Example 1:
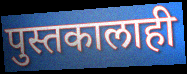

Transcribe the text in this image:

पुस्तकालाही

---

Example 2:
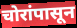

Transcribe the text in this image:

चोरांपासून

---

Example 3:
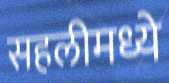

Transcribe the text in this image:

सहलीमध्ये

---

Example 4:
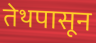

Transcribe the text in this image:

तेथपासून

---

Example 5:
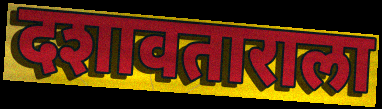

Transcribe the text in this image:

दशावताराला